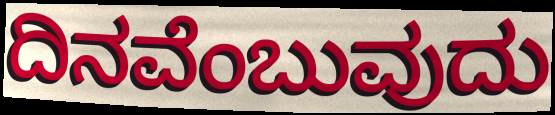
ದಿನವೆಂಬುವುದು